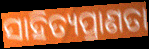
ସାହିତ୍ୟପ୍ରାଣତା